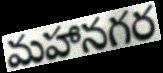
మహానగర